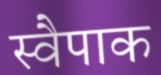
स्वैपाक